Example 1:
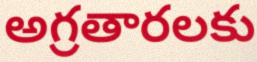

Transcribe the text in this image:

అగ్రతారలకు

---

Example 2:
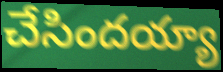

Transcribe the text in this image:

చేసిందయ్యా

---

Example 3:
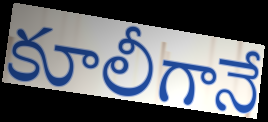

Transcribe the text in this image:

కూలీగానే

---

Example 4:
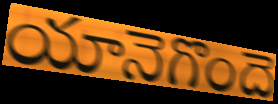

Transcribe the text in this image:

యానెగొందె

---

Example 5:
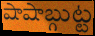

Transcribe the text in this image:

షాషాబ్గుట్ట